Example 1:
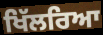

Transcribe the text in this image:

ਖਿੱਲਰਿਆ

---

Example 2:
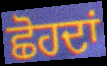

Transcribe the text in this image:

ਛੋਹਦਾਂ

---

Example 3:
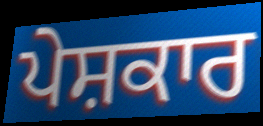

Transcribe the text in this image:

ਪੇਸ਼ਕਾਰ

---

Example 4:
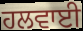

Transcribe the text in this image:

ਹਲਵਾਈ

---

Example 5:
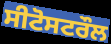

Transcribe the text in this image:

ਸੀਟੋਸਟਰੌਲ